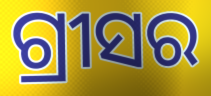
ଗ୍ରୀସର